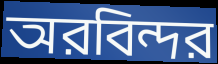
অরবিন্দর